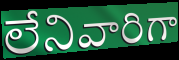
లేనివారిగా